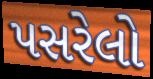
પસરેલો